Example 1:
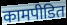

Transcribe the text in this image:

कामपीडित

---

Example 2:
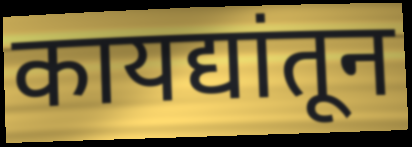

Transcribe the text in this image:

कायद्यांतून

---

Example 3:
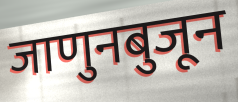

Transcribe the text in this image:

जाणुनबुजून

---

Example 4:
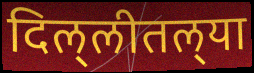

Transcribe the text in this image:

दिल्लीतल्या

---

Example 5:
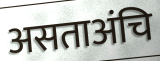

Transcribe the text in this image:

असताअंचि